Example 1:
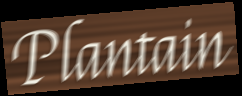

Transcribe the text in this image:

Plantain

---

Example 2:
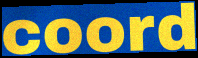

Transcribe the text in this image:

coord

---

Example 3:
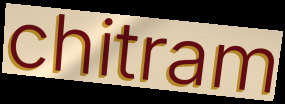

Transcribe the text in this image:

chitram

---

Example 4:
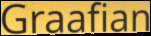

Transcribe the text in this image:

Graafian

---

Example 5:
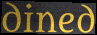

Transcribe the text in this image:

dined